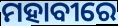
ମହାବୀରେ